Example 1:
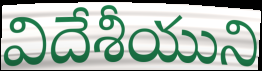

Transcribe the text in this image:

విదేశీయుని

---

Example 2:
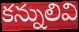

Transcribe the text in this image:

కన్నులివి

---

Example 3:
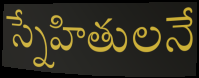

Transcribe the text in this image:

స్నేహితులనే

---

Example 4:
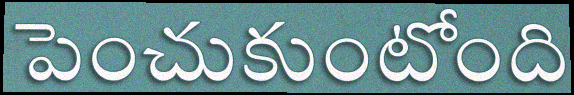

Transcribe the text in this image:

పెంచుకుంటోంది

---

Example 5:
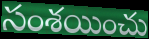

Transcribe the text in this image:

సంశయించు